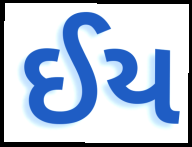
ઈય